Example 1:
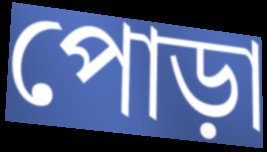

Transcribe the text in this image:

পোড়া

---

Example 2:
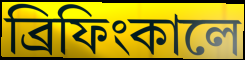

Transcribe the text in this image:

ব্রিফিংকালে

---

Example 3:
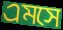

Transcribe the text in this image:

এমসে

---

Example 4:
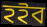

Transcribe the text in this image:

হইব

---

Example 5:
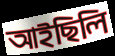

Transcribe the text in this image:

আইছিলি